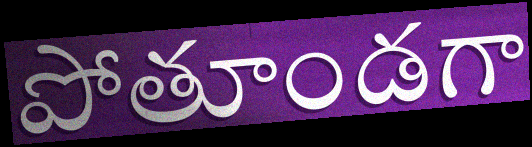
పోతూండగా